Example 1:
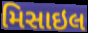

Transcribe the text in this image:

મિસાઇલ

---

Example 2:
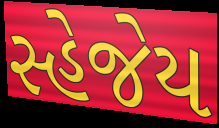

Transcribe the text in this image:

સ્હેજેય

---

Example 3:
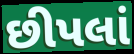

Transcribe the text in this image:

છીપલાં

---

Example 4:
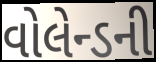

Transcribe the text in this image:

વોલેન્ડની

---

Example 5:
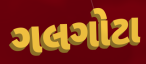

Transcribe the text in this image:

ગલગોટા